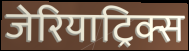
जेरियाट्रिक्स